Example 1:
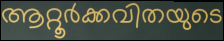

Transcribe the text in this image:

ആറ്റൂർക്കവിതയുടെ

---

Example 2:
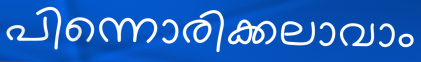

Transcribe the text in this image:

പിന്നൊരിക്കലാവാം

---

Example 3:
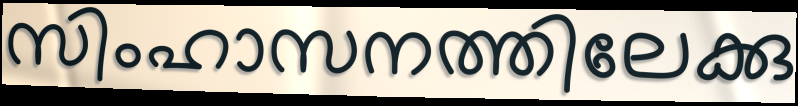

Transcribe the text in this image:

സിംഹാസനത്തിലേക്കു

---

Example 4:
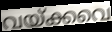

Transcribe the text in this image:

വയ്ക്കവെ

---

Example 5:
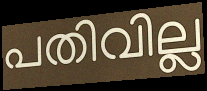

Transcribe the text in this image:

പതിവില്ല